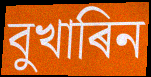
বুখাৰিন